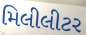
મિલીલીટર